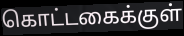
கொட்டகைக்குள்